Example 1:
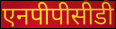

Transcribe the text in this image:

एनपीपीसीडी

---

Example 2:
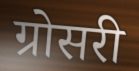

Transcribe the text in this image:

ग्रोसरी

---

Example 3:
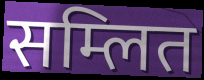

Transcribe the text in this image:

सम्लित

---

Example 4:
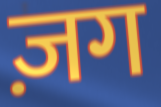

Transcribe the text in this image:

ज़ग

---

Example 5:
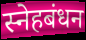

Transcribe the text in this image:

स्नेहबंधन